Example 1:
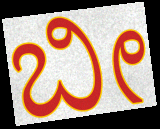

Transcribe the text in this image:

ಬೀ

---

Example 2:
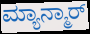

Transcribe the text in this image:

ಮ್ಯಾನ್ಮಾರ್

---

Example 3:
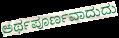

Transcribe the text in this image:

ಅರ್ಥಪೂರ್ಣವಾದುದು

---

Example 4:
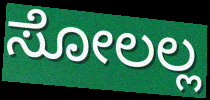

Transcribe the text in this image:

ಸೋಲಲ್ಲ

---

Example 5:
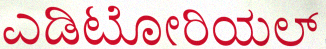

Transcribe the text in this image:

ಎಡಿಟೋರಿಯಲ್